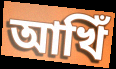
আখিঁ